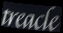
treacle